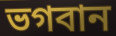
ভগবান